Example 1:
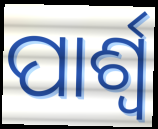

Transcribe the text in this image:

ପାର୍ଶ୍ବ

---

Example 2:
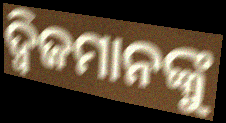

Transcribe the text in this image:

ଦ୍ୱିଜମାନଙ୍କୁ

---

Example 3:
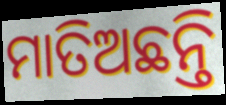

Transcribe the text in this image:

ମାତିଅଛନ୍ତି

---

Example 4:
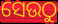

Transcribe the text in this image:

ସେଉଠୁ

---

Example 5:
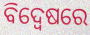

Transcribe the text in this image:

ବିଦ୍ୱେଷରେ